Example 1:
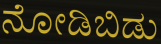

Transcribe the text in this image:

ನೋಡಿಬಿಡು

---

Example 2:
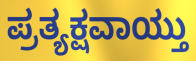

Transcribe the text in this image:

ಪ್ರತ್ಯಕ್ಷವಾಯ್ತು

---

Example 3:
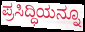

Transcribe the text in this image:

ಪ್ರಸಿದ್ಧಿಯನ್ನೂ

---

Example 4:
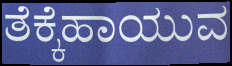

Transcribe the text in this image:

ತೆಕ್ಕೆಹಾಯುವ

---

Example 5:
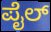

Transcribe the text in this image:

ಪೈಲ್